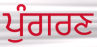
ਪੁੰਗਰਣ